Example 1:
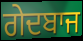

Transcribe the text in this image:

ਗੇਦਬਾਜ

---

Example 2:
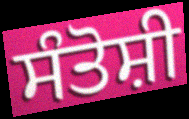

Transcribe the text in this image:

ਸੰਤੋਸ਼ੀ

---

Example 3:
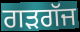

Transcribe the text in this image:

ਗਡ਼ਗੱਜ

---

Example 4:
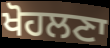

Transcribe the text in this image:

ਖੋਹਲਣਾ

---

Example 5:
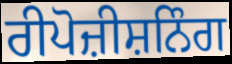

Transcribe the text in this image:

ਰੀਪੋਜ਼ੀਸ਼ਨਿੰਗ